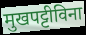
मुखपट्टीविना